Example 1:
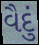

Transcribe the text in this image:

વૈદું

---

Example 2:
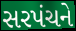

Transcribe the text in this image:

સરપંચને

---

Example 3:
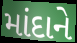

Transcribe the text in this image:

માંદાને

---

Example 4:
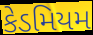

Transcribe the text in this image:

કેડમિયમ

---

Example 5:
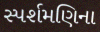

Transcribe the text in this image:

સ્પર્શમણિના